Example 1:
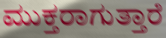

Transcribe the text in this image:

ಮುಕ್ತರಾಗುತ್ತಾರೆ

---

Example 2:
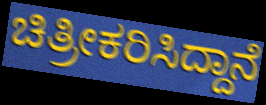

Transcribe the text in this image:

ಚಿತ್ರೀಕರಿಸಿದ್ದಾನೆ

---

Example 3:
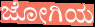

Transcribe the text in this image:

ಜೋಗಿಯ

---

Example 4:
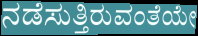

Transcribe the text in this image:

ನಡೆಸುತ್ತಿರುವಂತೆಯೇ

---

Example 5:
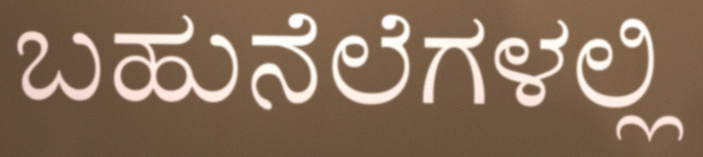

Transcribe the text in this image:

ಬಹುನೆಲೆಗಳಲ್ಲಿ